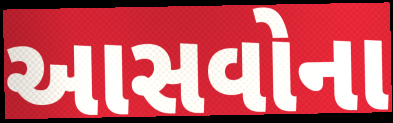
આસવોના